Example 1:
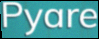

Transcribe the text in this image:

Pyare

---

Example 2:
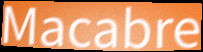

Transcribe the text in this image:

Macabre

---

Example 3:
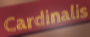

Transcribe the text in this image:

Cardinalis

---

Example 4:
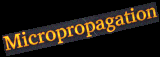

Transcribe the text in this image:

Micropropagation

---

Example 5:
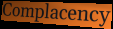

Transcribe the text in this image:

Complacency